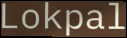
Lokpal